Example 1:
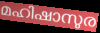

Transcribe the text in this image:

മഹിഷാസുര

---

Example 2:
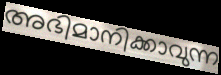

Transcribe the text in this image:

അഭിമാനിക്കാവുന്ന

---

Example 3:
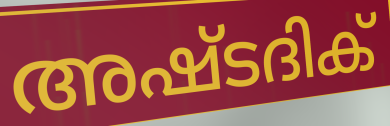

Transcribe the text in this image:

അഷ്ടദിക്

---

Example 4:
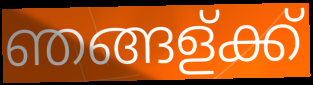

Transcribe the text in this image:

ഞങ്ങള്ക്ക്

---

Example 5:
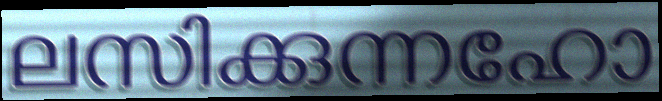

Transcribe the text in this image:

ലസിക്കുന്നഹോ